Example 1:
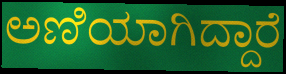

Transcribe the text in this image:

ಅಣಿಯಾಗಿದ್ದಾರೆ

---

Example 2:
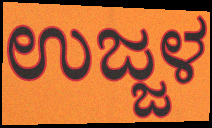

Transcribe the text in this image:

ಉಜ್ಜಳ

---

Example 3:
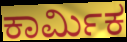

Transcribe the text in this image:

ಕಾರ್ಮಿಕ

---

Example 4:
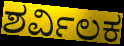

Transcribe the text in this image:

ಶರ್ವಿಲಕ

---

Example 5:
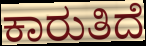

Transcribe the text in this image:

ಕಾರುತಿದೆ